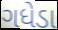
ગધેડા